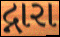
દ્નારા